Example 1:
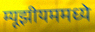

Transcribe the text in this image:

म्यूझीयममध्ये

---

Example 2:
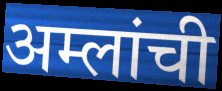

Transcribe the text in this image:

अम्‍लांची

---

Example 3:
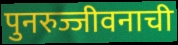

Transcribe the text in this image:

पुनरुज्जीवनाची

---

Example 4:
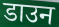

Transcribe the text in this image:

डाउन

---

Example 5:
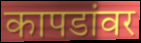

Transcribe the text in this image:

कापडांवर